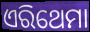
ଏରିଥେମା